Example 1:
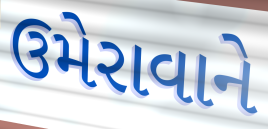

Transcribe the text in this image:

ઉમેરાવાને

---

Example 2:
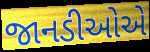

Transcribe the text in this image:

જાનડીઓએ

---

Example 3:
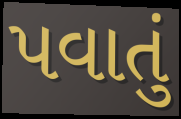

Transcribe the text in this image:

પવાતું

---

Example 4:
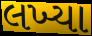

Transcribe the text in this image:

લખ્યા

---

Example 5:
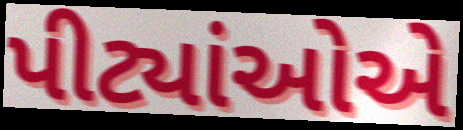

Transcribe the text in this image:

પીટ્યાંઓએ